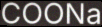
COONa